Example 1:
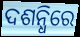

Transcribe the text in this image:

ଦଶନ୍ଧିରେ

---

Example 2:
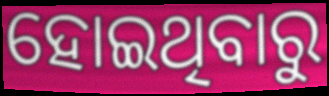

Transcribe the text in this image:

ହୋଇଥିବାରୁ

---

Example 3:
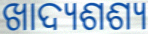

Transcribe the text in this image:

ଖାଦ୍ୟଶଶ୍ୟ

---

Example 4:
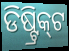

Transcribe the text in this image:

ଡିଷ୍ଟ୍ରିକ୍‌ଟ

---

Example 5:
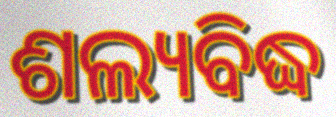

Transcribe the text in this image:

ଶଲ୍ୟବିଦ୍ଧ